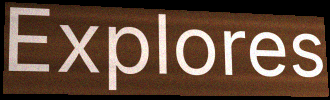
Explores